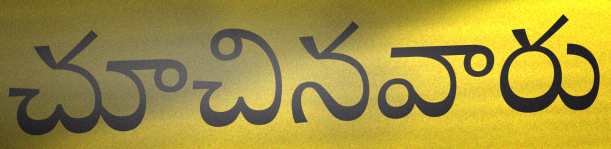
చూచినవారు